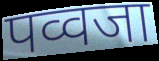
पव्वजा